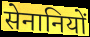
सेनानियों